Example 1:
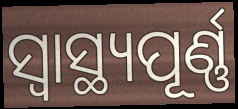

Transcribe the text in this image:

ସ୍ବାସ୍ଥ୍ୟପୂର୍ଣ୍ଣ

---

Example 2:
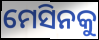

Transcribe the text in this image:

ମେସିନକୁ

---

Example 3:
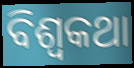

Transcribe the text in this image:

ବିଶ୍ୱକଥା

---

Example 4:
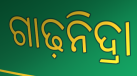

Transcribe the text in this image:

ଗାଢ଼ନିଦ୍ରା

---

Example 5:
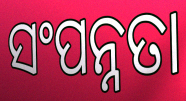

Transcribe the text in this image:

ସଂପନ୍ନତା